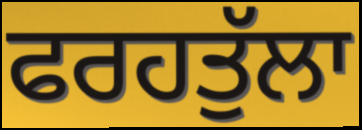
ਫਰਹਤੁੱਲਾ